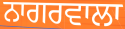
ਨਾਗਰਵਾਲਾ